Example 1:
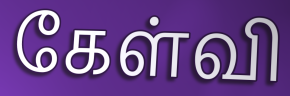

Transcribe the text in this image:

கேள்வி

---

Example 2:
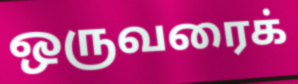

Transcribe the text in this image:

ஒருவரைக்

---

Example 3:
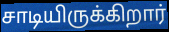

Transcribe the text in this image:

சாடியிருக்கிறார்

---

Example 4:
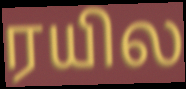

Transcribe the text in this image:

ரயில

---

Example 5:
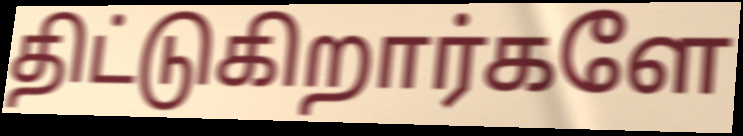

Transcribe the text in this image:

திட்டுகிறார்களே